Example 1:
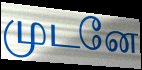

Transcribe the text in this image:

முடனே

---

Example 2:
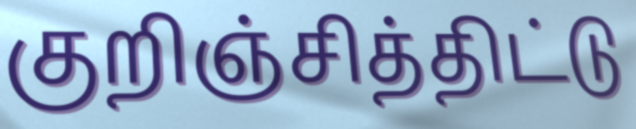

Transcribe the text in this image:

குறிஞ்சித்திட்டு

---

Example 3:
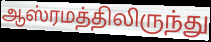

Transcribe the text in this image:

ஆஸ்ரமத்திலிருந்து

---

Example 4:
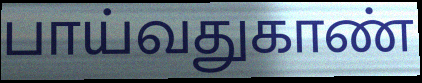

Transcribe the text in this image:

பாய்வதுகாண்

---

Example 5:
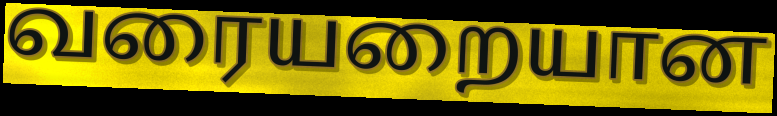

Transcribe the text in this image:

வரையறையான